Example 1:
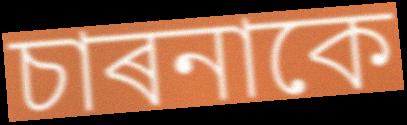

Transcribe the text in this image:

চাৰনাকে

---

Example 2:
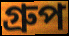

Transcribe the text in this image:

গ্ৰুপ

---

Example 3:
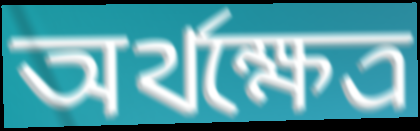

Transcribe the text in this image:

অৰ্থক্ষেত্ৰ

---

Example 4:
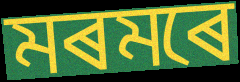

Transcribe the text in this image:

মৰমৰে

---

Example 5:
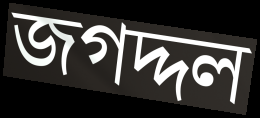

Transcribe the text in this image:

জগদ্দল